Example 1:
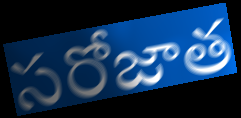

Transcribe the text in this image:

సరోజాత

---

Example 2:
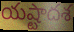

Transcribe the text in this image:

యష్టాదశ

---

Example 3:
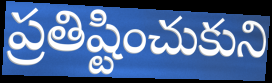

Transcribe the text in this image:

ప్రతిష్టించుకుని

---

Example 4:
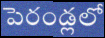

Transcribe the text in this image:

పెరండ్లలో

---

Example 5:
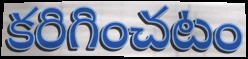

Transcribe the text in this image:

కరిగించటం